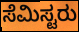
ಸೆಮಿಸ್ಟರು